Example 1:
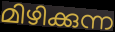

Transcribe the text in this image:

മിഴിക്കുന്ന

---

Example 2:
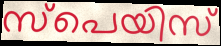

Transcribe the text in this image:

സ്പെയിസ്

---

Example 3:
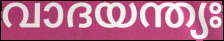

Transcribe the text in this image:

വാദയന്ത്യഃ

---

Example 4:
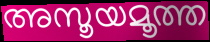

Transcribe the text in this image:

അസൂയമൂത്ത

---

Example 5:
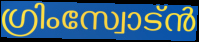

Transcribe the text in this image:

ഗ്രിംസ്വോട്ൻ